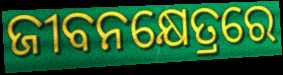
ଜୀବନକ୍ଷେତ୍ରରେ